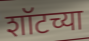
शॉटच्या